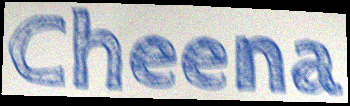
Cheena